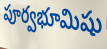
పూర్వభూమిషు